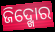
ଜିଦ୍ଖୋର